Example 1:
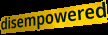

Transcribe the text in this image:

disempowered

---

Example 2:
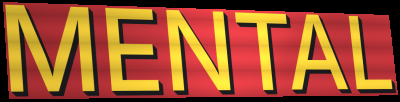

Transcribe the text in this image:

MENTAL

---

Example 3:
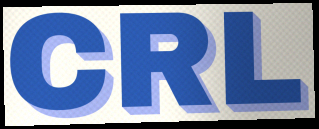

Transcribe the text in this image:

CRL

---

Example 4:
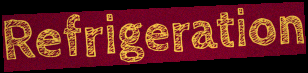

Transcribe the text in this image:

Refrigeration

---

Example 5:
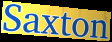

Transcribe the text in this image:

Saxton